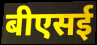
बीएसई